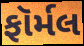
ફૉર્મલ